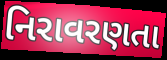
નિરાવરણતા